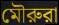
মৌরুরা